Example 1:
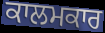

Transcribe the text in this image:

ਕਾਲਮਕਾਰ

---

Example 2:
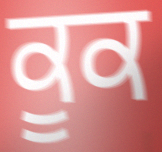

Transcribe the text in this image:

ਕੂਕ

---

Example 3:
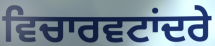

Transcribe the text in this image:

ਵਿਚਾਰਵਟਾਂਦਰੇ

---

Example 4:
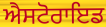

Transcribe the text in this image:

ਐਸਟੋਰਾਇਡ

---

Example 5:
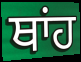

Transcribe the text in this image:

ਥਾਂਹ